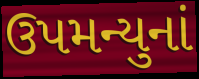
ઉપમન્યુનાં